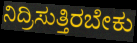
ನಿದ್ರಿಸುತ್ತಿರಬೇಕು